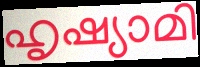
ഹൃഷ്യാമി